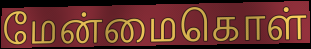
மேன்மைகொள்